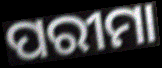
ପରୀମା